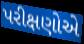
પરીક્ષણોએ